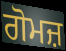
ਗੋਮਜ਼